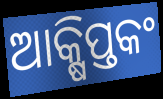
ଆକ୍ଷିପ୍ତକଂ